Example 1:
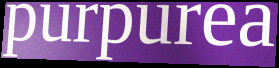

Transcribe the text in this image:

purpurea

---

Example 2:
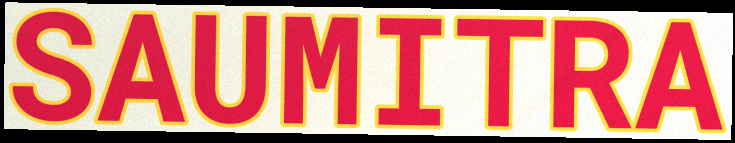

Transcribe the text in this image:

SAUMITRA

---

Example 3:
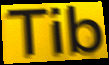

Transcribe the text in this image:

Tib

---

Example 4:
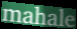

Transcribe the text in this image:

mahale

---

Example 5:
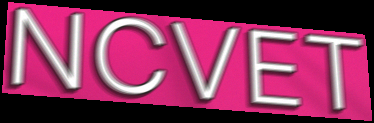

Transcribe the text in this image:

NCVET